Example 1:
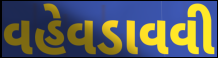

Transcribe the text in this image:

વહેવડાવવી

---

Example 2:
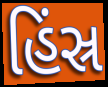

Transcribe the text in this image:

હિંસ્ર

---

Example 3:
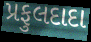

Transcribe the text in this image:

પ્રફુલદાદા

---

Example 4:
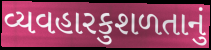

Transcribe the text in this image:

વ્યવહારકુશળતાનું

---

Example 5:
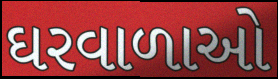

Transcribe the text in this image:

ઘરવાળાઓ